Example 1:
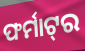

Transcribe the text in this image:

ଫର୍ମାଟ୍‌ର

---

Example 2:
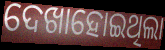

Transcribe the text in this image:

ଦେଖାହୋଇଥିଲା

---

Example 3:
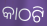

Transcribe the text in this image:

କାଠଟି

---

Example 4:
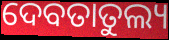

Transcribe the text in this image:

ଦେବତାତୁଲ୍ୟ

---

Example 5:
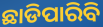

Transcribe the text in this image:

ଛାଡିପାରିବି